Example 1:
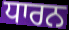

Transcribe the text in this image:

ਧਾਰਨ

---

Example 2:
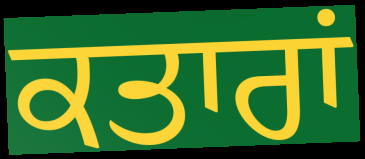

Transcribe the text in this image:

ਕਤਾਰਾਂ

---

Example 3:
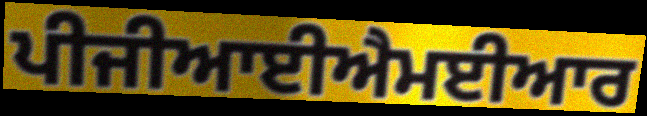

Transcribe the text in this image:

ਪੀਜੀਆਈਐਮਈਆਰ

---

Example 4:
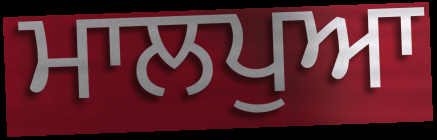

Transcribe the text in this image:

ਮਾਲਪੁਆ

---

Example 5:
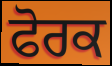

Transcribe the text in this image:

ਫੋਰਕ